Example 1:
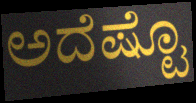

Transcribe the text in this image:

ಅದೆಷ್ಟೊ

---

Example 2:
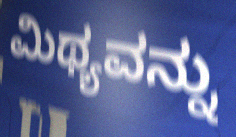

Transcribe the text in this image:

ಮಿಥ್ಯವನ್ನು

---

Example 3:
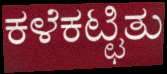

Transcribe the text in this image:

ಕಳೆಕಟ್ಟಿತು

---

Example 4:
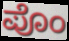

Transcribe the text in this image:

ಪೊಂ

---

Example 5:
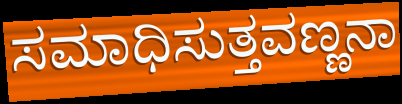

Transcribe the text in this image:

ಸಮಾಧಿಸುತ್ತವಣ್ಣನಾ